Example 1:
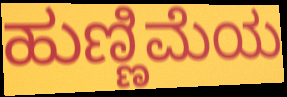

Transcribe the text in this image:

ಹುಣ್ಣಿಮೆಯ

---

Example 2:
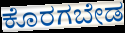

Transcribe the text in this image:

ಕೊರಗಬೇಡ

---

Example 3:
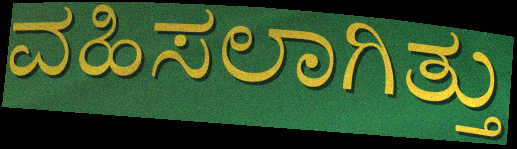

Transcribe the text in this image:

ವಹಿಸಲಾಗಿತ್ತು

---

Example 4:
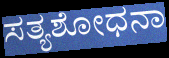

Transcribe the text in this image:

ಸತ್ಯಶೋಧನಾ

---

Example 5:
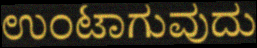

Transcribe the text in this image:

ಉಂಟಾಗುವುದು